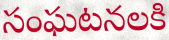
సంఘటనలకి